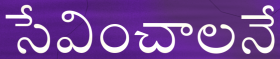
సేవించాలనే